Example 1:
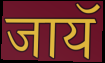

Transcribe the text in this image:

जायॅ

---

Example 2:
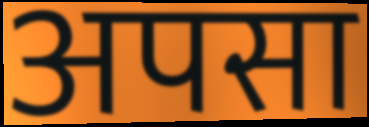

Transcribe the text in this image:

अपसा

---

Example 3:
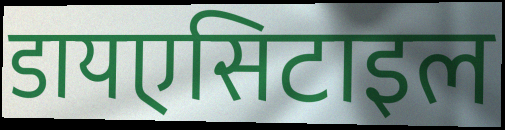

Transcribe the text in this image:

डायएसिटाइल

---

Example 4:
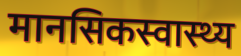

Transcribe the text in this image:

मानसिकस्वास्थ्य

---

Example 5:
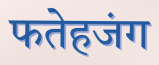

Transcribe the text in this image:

फतेहजंग